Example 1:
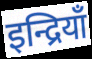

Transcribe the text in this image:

इन्द्रियाँ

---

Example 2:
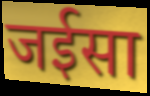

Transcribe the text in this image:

जईसा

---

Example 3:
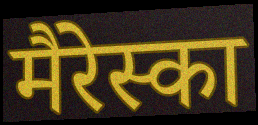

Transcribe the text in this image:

मैरेस्का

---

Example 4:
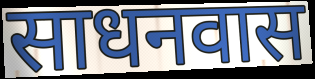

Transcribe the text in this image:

साधनवास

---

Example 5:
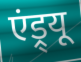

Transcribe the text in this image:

एंड्र्यू